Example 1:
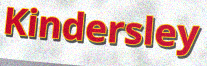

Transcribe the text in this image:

Kindersley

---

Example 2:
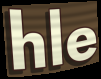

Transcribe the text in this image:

hle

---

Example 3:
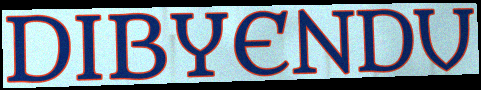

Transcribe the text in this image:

DIBYENDU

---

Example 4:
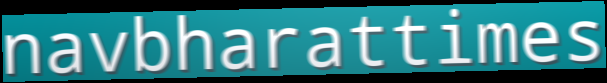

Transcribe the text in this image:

navbharattimes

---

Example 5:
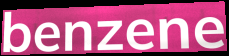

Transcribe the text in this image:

benzene